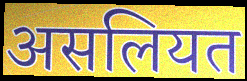
असलियत